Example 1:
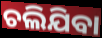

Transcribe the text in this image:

ଚଲିଯିବା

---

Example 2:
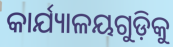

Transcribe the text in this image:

କାର୍ଯ୍ୟାଳୟଗୁଡ଼ିକୁ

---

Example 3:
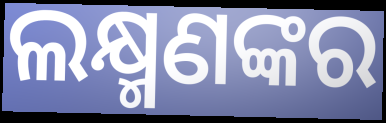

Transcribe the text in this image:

ଲକ୍ଷ୍ମଣଙ୍କର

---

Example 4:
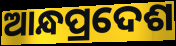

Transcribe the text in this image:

ଆନ୍ଧପ୍ରଦେଶ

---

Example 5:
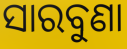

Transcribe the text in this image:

ସାରବୁଣା